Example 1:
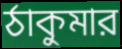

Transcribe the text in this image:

ঠাকুমার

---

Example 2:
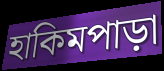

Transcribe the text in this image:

হাকিমপাড়া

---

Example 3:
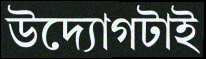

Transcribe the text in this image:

উদ্যোগটাই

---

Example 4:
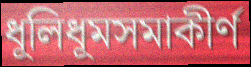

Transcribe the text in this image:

ধূলিধূমসমাকীর্ণ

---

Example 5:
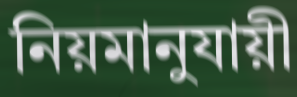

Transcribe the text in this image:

নিয়মানুযায়ী